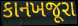
કાનખજૂરા